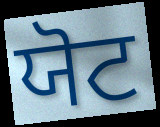
ਯੋਟ